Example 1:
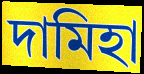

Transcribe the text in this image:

দামিহা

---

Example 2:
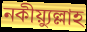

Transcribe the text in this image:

নকীয়্যুল্লাহ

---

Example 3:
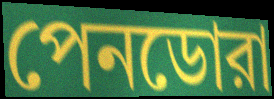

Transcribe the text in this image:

পেনডোরা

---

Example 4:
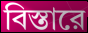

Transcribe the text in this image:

বিস্তারে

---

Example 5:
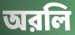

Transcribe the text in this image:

অরলি